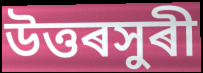
উত্তৰসুৰী